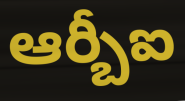
ఆర్బీఐ